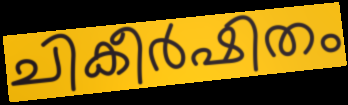
ചികീർഷിതം